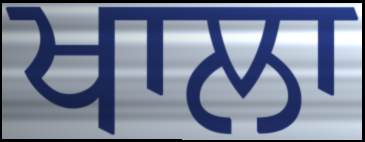
ਖਾਲਾ